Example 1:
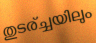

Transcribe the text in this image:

തുടര്ച്ചയിലും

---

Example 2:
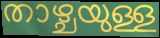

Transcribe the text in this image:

താഴ്ചയുള്ള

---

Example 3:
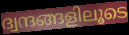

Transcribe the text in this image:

ദ്വന്ദങ്ങളിലൂടെ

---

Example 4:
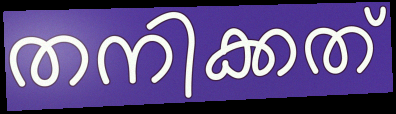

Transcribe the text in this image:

തനിക്കത്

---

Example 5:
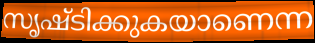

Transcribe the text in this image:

സൃഷ്ടിക്കുകയാണെന്ന